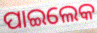
ପାଇଲେକ